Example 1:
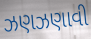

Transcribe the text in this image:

ઝણઝણાવી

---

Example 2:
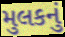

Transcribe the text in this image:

મુલકનું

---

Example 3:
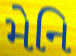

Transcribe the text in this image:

મેનિ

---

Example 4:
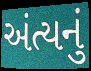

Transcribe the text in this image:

અંત્યનું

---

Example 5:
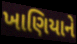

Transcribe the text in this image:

ખાણિયાને